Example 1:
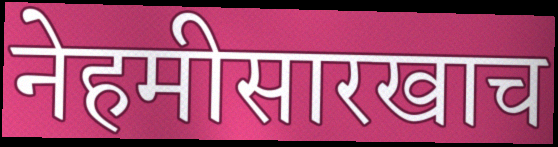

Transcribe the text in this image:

नेहमीसारखाच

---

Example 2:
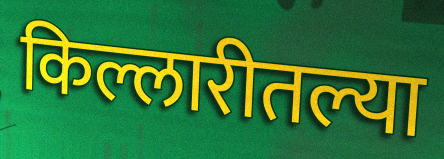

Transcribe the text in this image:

किल्लारीतल्या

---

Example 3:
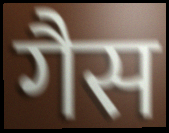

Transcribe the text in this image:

गैस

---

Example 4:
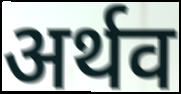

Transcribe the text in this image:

अर्थव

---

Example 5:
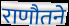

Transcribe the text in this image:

राणौतने